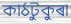
কাঠটুকুৰা